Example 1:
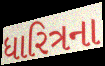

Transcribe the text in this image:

ધારિત્રના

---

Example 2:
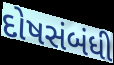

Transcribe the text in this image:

દોષસંબંધી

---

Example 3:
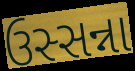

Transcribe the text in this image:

ઉસ્સન્ના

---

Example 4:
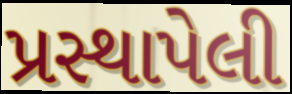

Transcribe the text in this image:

પ્રસ્થાપેલી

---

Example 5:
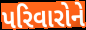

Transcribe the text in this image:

પરિવારોને